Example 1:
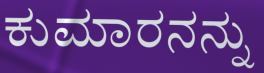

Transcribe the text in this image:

ಕುಮಾರನನ್ನು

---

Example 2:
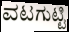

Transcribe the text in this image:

ವಟಗುಟ್ಟಿ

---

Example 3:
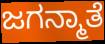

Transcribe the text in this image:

ಜಗನ್ಮಾತೆ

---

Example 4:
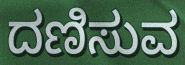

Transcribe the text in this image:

ದಣಿಸುವ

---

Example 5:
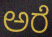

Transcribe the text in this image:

ಅರೆ